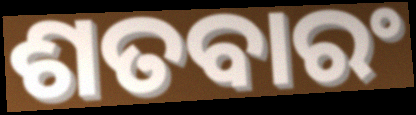
ଶତବାରଂ